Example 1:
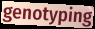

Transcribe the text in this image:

genotyping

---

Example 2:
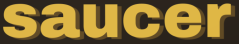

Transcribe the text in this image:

saucer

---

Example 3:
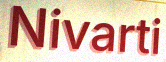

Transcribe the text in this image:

Nivarti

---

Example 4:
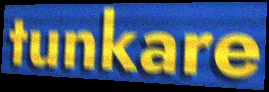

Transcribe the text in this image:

tunkare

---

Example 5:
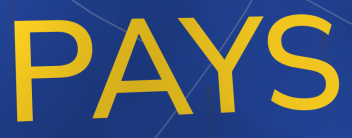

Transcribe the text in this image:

PAYS